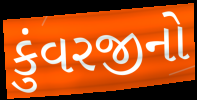
કુંવરજીનો